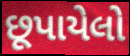
છૂપાયેલો